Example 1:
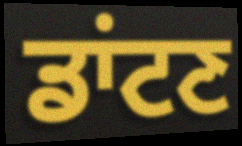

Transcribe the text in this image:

ਡਾਂਟਣ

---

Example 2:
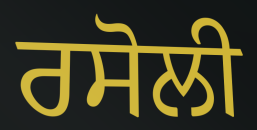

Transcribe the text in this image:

ਰਸੋਲੀ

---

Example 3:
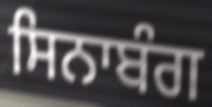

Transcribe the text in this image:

ਸਿਨਾਬੰਗ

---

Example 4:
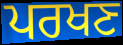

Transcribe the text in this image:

ਪਰਖਣ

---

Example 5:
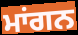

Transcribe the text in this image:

ਮਾਂਗਨ